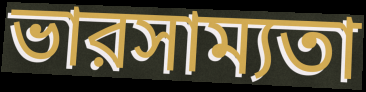
ভারসাম্যতা